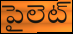
పైలెట్